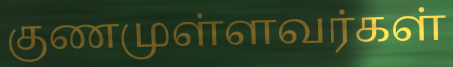
குணமுள்ளவர்கள்